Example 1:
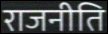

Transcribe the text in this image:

राजनीति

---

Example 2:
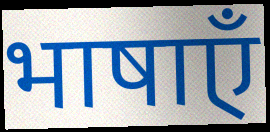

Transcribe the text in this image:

भाषाएँ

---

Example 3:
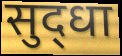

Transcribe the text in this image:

सुद्धा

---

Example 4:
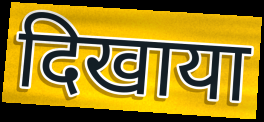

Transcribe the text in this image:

दिखाया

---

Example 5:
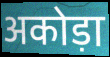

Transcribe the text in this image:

अकोड़ा